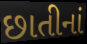
છાતીનાં